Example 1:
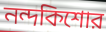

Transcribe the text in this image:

নন্দকিশোর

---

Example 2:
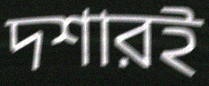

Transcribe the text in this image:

দশারই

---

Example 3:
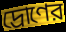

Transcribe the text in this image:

দ্রোণের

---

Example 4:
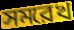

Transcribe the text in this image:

সমরেখ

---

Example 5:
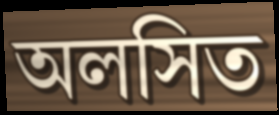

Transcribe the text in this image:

অলসিত